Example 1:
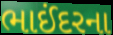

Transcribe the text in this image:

ભાઈંદરના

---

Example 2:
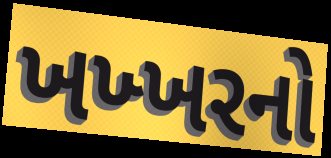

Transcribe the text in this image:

ખખ્ખરનો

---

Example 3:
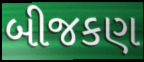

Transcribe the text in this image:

બીજકણ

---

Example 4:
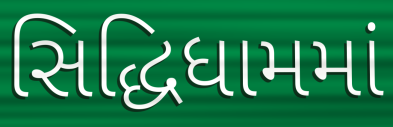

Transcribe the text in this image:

સિદ્ધિધામમાં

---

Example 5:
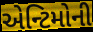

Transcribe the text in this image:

એન્ટિમોની